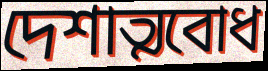
দেশাত্মবোধ